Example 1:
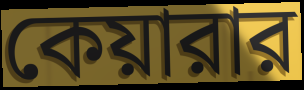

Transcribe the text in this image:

কেয়ারার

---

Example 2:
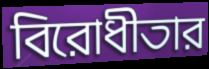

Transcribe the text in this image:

বিরোধীতার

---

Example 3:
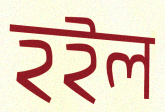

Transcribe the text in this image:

হইল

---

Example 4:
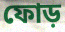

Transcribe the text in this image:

ফোড়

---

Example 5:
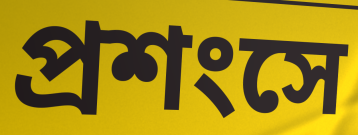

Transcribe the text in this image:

প্রশংসে